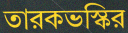
তারকভস্কির